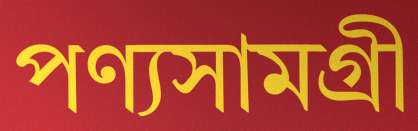
পণ্যসামগ্রী